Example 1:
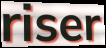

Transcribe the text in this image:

riser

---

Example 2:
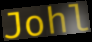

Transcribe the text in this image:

Johl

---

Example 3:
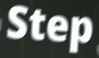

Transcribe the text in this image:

Step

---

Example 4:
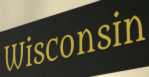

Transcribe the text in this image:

Wisconsin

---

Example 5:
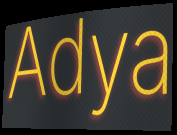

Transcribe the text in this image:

Adya